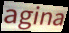
agina